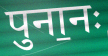
पुना॒नः